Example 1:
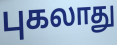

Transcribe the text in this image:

புகலாது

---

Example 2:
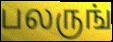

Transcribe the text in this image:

பலருங்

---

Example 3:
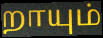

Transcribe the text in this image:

றாயும்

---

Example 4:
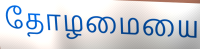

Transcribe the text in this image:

தோழமையை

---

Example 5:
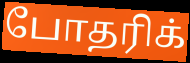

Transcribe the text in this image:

போதரிக்